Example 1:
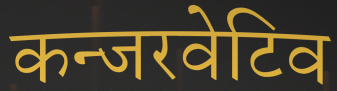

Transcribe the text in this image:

कन्जरवेटिव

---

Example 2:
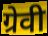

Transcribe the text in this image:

ग्रेवी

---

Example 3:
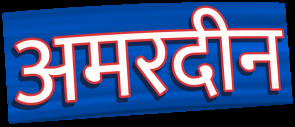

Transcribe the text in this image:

अमरदीन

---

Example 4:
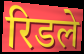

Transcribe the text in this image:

रिडले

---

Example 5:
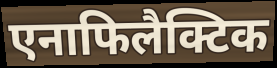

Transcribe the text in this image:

एनाफिलैक्टिक